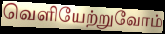
வெளியேற்றுவோம்